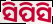
ସିପିସି